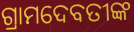
ଗ୍ରାମଦେବତୀଙ୍କ